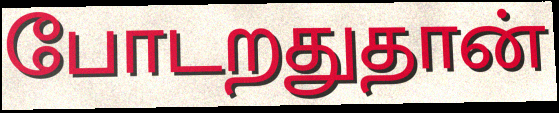
போடறதுதான்